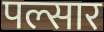
पल्सार